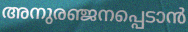
അനുരഞ്ജനപ്പെടാൻ